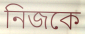
নিজকে